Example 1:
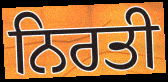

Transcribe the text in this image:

ਨਿਰਤੀ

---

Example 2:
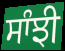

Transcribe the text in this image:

ਸਾੰਝੀ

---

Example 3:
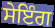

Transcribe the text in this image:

ਸੇਇੰਗ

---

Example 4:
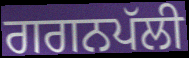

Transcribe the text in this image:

ਗਗਨਪੱਲੀ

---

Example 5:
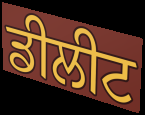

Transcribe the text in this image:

ਡੀਲੀਟ